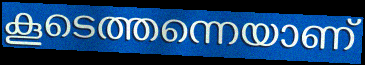
കൂടെത്തന്നെയാണ്